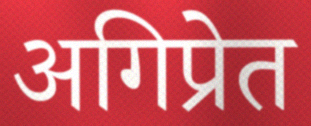
अगिप्रेत